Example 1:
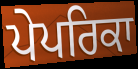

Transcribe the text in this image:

ਪੇਪਰਿਕਾ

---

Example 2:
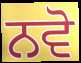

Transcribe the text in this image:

ਨਵੋ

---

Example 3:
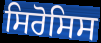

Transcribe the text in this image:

ਸਿਰੋਸਿਸ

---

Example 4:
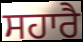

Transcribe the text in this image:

ਸਹਾਰੈ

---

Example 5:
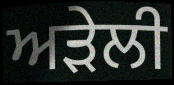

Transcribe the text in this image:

ਅੜੇਲੀ